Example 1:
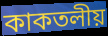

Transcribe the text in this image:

কাকতলীয়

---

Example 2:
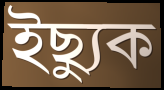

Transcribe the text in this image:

ইছ্যুক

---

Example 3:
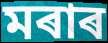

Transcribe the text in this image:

মৰাৰ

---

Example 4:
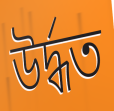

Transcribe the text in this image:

উৰ্দ্ধত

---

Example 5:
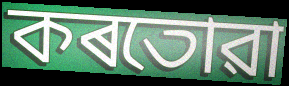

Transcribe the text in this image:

কৰতোৱা